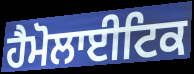
ਹੈਮੋਲਾਈਟਿਕ